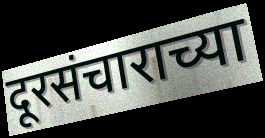
दूरसंचाराच्या